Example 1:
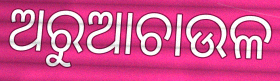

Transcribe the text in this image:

ଅରୁଆଚାଉଳ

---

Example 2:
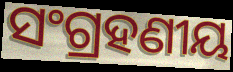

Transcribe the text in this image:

ସଂଗ୍ରହଣୀୟ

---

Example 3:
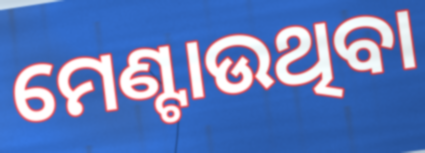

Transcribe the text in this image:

ମେଣ୍ଟାଉଥିବା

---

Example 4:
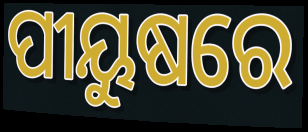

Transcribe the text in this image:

ପୀୟୁଷରେ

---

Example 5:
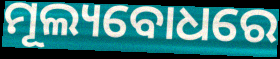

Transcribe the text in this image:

ମୂଲ୍ୟବୋଧରେ